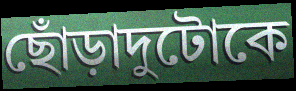
ছোঁড়াদুটোকে